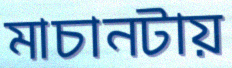
মাচানটায়